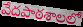
వేదపాఠశాలలో